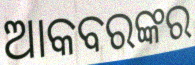
ଆକବରଙ୍କର